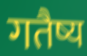
गतैष्य